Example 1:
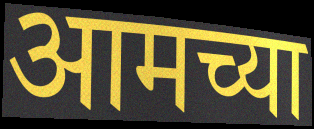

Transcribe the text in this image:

आमच्या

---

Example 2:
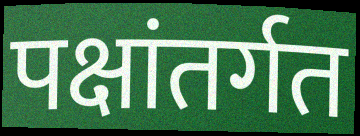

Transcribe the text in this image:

पक्षांतर्गत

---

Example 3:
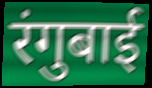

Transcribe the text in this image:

रंगुबाई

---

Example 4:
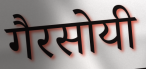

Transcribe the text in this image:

गैरसोयी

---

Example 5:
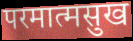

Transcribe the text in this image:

परमात्मसुख